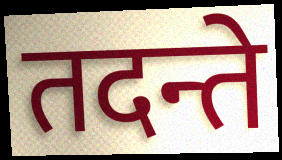
तदन्ते